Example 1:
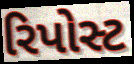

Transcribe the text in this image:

રિપોસ્ટ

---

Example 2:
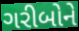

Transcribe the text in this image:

ગરીબોને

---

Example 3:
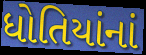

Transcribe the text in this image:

ધોતિયાંનાં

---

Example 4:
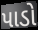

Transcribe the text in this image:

પાડો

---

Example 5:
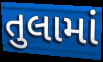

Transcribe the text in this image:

તુલામાં